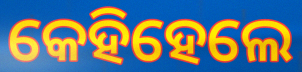
କେହିହେଲେ